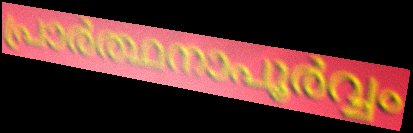
പ്രാർത്ഥനാപൂർവ്വം